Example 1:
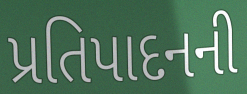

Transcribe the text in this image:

પ્રતિપાદનની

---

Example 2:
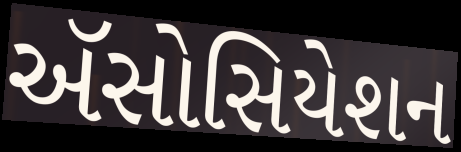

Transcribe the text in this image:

ઍસોસિયેશન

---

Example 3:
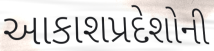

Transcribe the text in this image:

આકાશપ્રદેશોની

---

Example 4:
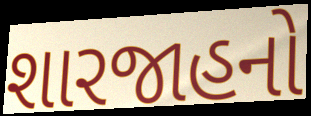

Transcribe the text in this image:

શારજાહનો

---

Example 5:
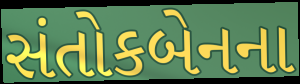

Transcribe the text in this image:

સંતોકબેનના